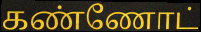
கண்ணோட்